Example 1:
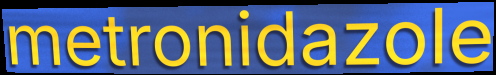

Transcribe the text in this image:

metronidazole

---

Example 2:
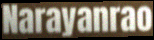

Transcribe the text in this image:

Narayanrao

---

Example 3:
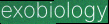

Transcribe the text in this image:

exobiology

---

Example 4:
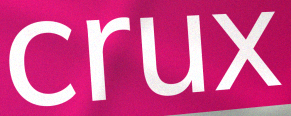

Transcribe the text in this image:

crux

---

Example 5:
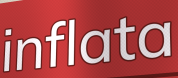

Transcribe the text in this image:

inflata